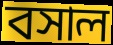
বসাল